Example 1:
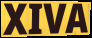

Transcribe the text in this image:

XIVA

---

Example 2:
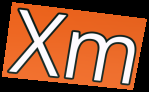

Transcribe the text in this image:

Xm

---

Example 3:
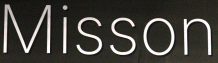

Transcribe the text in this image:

Misson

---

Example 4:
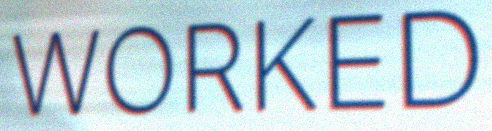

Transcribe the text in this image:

WORKED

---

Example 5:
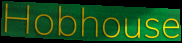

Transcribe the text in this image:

Hobhouse